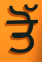
ਤੋੱ